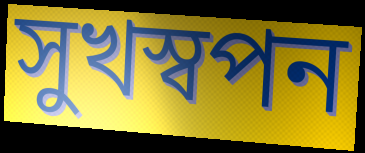
সুখস্বপন